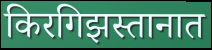
किरगिझस्तानात